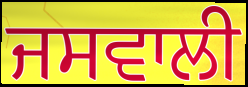
ਜਸਵਾਲੀ